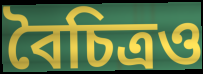
বৈচিত্রও